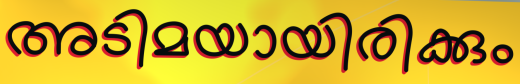
അടിമയായിരിക്കും